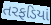
તરફડિયાં